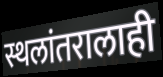
स्थलांतरालाही